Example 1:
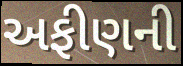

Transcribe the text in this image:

અફીણની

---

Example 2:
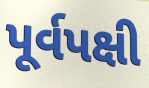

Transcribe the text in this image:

પૂર્વપક્ષી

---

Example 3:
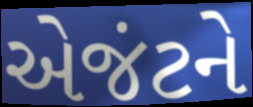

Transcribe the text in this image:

એજંટને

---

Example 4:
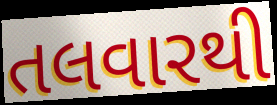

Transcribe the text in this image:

તલવારથી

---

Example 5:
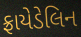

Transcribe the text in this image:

ફ્રાયેડેલિન